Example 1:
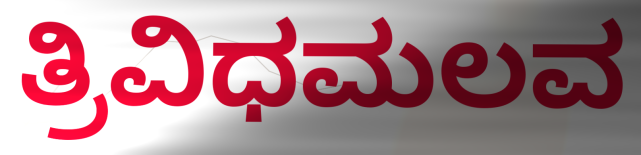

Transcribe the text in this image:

ತ್ರಿವಿಧಮಲವ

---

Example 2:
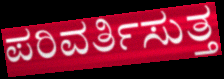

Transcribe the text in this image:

ಪರಿವರ್ತಿಸುತ್ತ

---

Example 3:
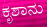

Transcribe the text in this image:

ಕೃಶಾನು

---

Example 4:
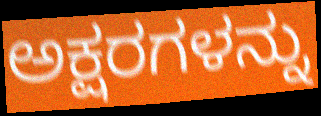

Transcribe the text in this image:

ಅಕ್ಷರಗಳನ್ನು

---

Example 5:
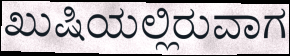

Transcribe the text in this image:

ಖುಷಿಯಲ್ಲಿರುವಾಗ